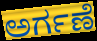
ಅರ್ಗಣೆ